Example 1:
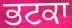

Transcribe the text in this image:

ਭਟਕਾ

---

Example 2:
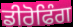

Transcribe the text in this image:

ਡੀਰੋਫਿੰਗ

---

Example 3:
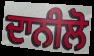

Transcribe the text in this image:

ਦਾਨੀਲੋ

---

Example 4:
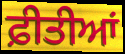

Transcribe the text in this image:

ਫ਼ੀਤੀਆਂ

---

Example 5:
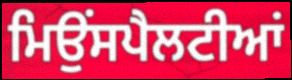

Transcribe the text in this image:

ਮਿਉਂਸਪੈਲਟੀਆਂ